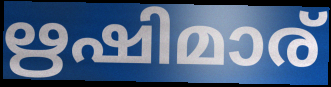
ഋഷിമാര്